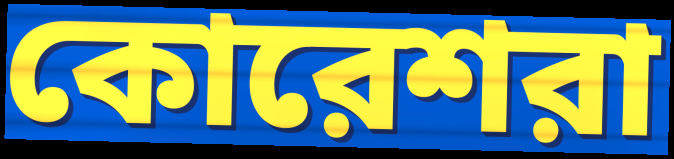
কোরেশরা